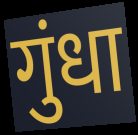
गुंधा